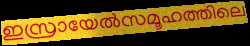
ഇസ്രായേൽസമൂഹത്തിലെ